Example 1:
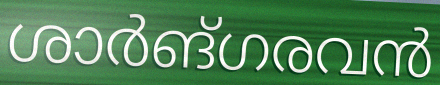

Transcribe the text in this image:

ശാർങ്ഗരവൻ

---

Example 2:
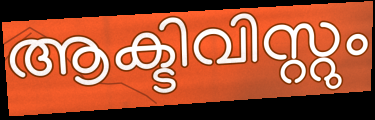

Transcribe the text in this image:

ആക്ടിവിസ്റ്റും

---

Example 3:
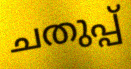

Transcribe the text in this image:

ചതുപ്പ്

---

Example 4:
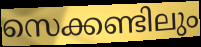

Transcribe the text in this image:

സെക്കണ്ടിലും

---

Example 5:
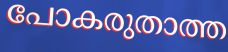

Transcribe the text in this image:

പോകരുതാത്ത